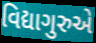
વિદ્યાગુરુએ